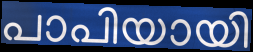
പാപിയായി